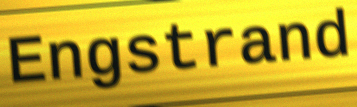
Engstrand